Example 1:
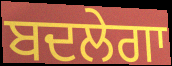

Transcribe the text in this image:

ਬਦਲੇਗਾ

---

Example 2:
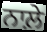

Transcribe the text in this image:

ਨਾਲ਼ੇ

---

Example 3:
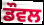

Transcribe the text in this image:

ਡੌਵਲ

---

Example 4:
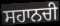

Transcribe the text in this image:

ਸਹਾਨਚੀ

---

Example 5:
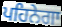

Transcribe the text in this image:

ਪਹਿਨੇਗਾ